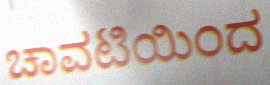
ಚಾವಟಿಯಿಂದ